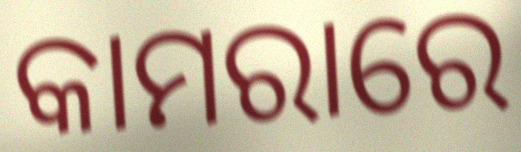
କାମରାରେ